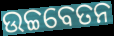
ଉଚ୍ଚବେତନ